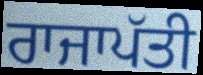
ਰਾਜਾਪੱਤੀ